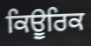
ਕਿਊਰਿਕ